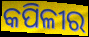
କପିଳୀର